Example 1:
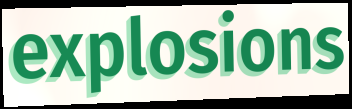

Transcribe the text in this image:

explosions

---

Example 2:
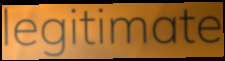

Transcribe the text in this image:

legitimate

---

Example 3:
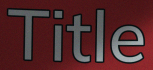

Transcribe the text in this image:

Title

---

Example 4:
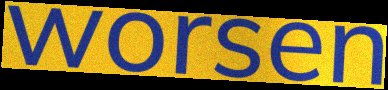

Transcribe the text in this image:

worsen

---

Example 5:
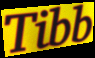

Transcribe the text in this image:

Tibb